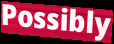
Possibly